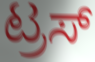
ಟ್ರಸ್